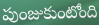
పుంజుకుంటోంది